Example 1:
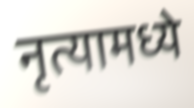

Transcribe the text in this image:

नृत्यामध्ये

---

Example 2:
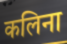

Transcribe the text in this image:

कलिना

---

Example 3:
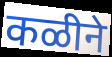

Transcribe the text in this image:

कळीने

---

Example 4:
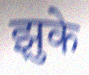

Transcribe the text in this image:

झुके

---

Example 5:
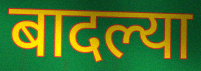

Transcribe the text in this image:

बादल्या